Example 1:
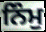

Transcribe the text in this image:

ਨਿੰਮੁ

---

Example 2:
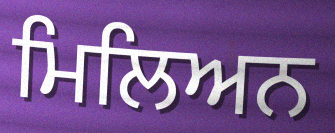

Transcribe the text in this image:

ਮਿਲਿਅਨ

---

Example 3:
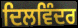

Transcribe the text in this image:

ਦਿਲਵਿੰਦਰ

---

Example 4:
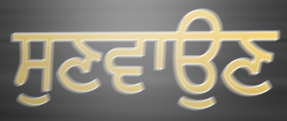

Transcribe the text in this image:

ਸੁਣਵਾਉਣ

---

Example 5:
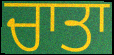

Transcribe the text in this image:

ਚਾਤਾ